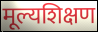
मूल्यशिक्षण